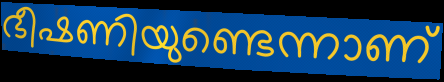
ഭീഷണിയുണ്ടെന്നാണ്